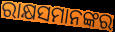
ରାକ୍ଷସମାନଙ୍କର